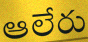
ఆలేరు